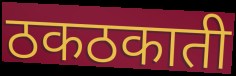
ठकठकाती